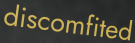
discomfited